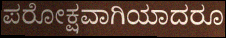
ಪರೋಕ್ಷವಾಗಿಯಾದರೂ